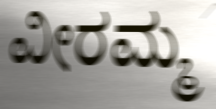
ವೀರಮ್ಮ